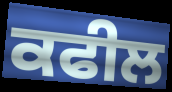
ਕਫੀਲ